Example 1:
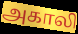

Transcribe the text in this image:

அகாலி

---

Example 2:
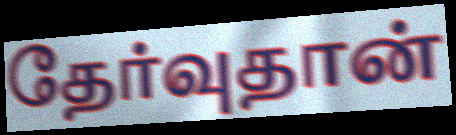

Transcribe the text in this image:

தேர்வுதான்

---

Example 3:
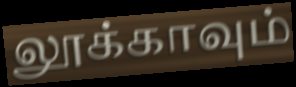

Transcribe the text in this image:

லூக்காவும்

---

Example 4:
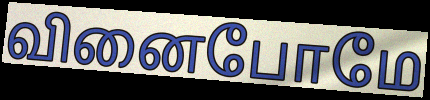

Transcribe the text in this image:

வினைபோமே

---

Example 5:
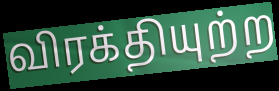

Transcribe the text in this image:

விரக்தியுற்ற